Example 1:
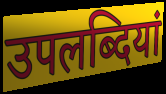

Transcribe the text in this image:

उपलब्दियां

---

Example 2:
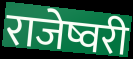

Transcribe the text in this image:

राजेष्वरी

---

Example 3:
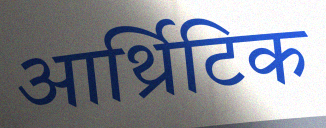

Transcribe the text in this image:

आर्थ्रिटिक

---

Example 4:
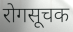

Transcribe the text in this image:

रोगसूचक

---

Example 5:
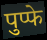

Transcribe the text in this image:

पुप्फे